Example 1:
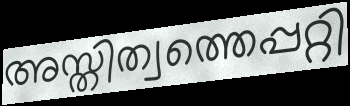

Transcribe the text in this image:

അസ്തിത്വത്തെപ്പറ്റി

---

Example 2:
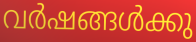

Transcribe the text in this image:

വർഷങ്ങൾക്കു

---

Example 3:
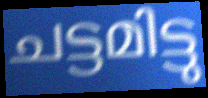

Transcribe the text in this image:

ചട്ടമിട്ടു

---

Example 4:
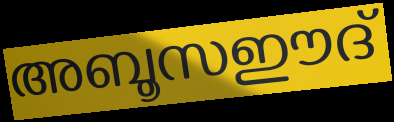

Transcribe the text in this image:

അബൂസഈദ്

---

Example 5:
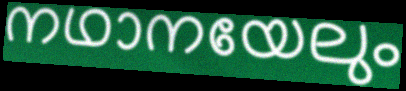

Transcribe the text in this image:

നഥാനയേലും